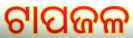
ଟାପଜଳ